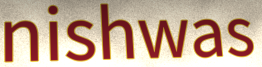
nishwas